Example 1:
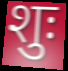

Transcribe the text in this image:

शुः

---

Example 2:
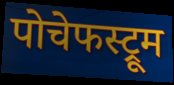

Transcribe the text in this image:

पोचेफस्ट्रूम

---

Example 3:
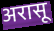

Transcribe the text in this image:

अरासू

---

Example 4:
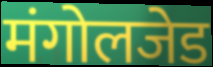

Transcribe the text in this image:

मंगोलजेड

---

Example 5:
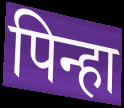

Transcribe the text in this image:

पिन्हा